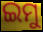
ଇମୁ